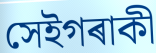
সেইগৰাকী